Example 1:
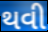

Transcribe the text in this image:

થવી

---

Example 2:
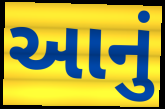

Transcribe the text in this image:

આનું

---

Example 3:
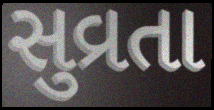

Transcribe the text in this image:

સુવ્રતા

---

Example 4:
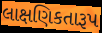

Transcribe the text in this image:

લાક્ષણિકતારૂપ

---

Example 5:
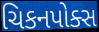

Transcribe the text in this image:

ચિકનપોક્સ